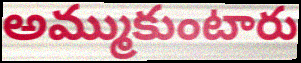
అమ్ముకుంటారు